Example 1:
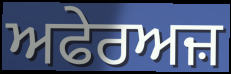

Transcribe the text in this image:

ਅਫੇਰਅਜ਼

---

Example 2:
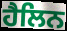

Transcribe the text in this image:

ਹੈਲਿਨ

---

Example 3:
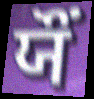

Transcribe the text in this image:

ਯੌਂ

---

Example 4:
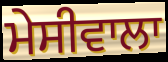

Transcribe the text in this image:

ਮੇਸੀਵਾਲਾ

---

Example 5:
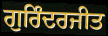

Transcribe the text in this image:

ਗੁਰਿੰਦਰਜੀਤ